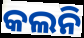
କଲନି